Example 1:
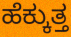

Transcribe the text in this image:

ಹೆಕ್ಕುತ್ತ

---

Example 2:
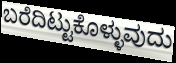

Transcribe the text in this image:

ಬರೆದಿಟ್ಟುಕೊಳ್ಳುವುದು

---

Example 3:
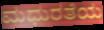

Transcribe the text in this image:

ಮಧುರತೆಯ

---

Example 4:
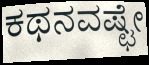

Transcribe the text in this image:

ಕಥನವಷ್ಟೇ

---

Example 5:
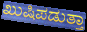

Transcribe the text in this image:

ಖುಷಿಪಡುತ್ತಾ